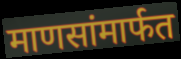
माणसांमार्फत